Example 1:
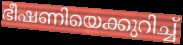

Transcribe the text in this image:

ഭീഷണിയെക്കുറിച്ച്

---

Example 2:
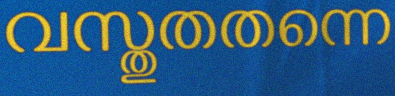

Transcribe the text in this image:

വസ്തുതതന്നെ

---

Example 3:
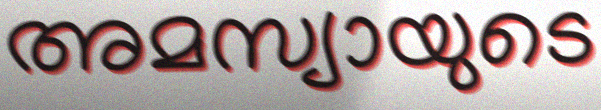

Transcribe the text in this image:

അമസ്യായുടെ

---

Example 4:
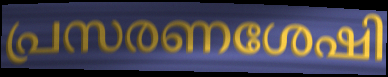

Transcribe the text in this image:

പ്രസരണശേഷി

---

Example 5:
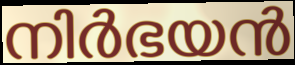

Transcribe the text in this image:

നിർഭയൻ